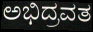
ಅಭಿದ್ರವತ